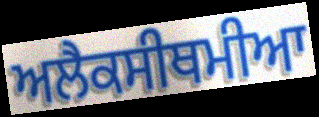
ਅਲੈਕਸੀਥਮੀਆ